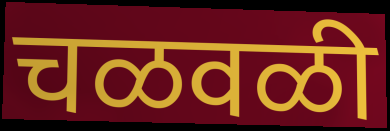
चळवळी